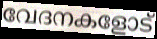
വേദനകളോട്